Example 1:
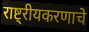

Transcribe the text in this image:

राष्ट्रीयकरणाचे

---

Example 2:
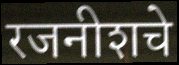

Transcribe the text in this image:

रजनीशचे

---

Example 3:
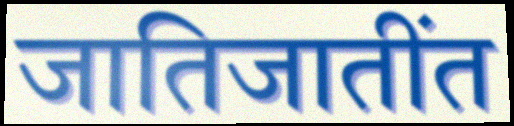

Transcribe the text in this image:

जातिजातींत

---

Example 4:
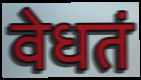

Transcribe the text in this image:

वेधतं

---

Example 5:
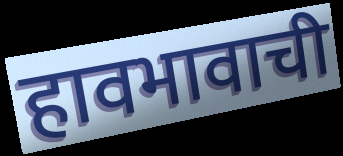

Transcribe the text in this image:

हावभावाची